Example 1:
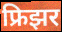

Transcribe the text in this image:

फ्रिझर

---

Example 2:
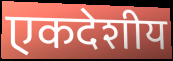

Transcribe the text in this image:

एकदेशीय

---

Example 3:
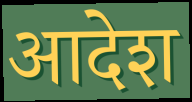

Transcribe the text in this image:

आदेश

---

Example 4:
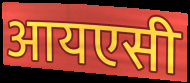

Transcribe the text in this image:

आयएसी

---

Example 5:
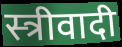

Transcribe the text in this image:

स्त्रीवादी